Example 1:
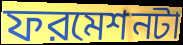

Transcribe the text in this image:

ফরমেশনটা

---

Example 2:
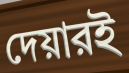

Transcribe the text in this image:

দেয়ারই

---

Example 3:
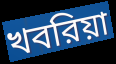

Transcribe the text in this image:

খবরিয়া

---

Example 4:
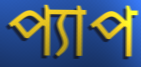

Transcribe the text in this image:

প্যাপ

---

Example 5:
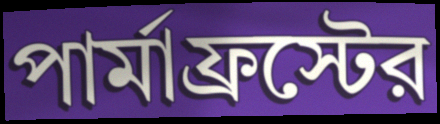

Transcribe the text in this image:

পার্মাফ্রস্টের